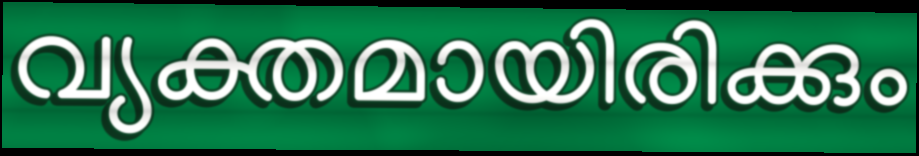
വ്യക്തമായിരിക്കും